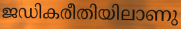
ജഡികരീതിയിലാണു